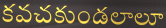
కవచకుండలాలూ